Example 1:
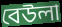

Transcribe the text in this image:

বেউলা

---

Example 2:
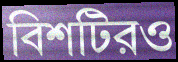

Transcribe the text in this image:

বিশটিরও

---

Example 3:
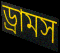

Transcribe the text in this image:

ড্রামস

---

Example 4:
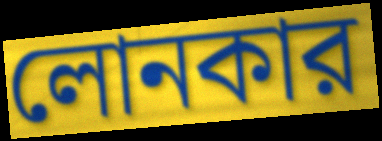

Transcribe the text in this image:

লোনকার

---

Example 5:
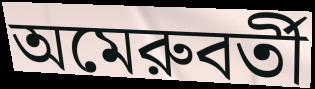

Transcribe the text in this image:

অমেরুবর্তী